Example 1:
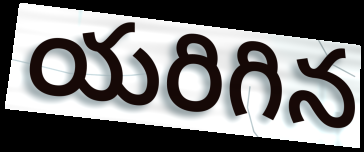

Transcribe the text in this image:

యరిగిన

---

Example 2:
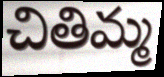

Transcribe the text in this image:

చితిమ్మ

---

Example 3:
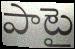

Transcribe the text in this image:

పాటై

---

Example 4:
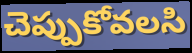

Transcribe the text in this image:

చెప్పుకోవలసి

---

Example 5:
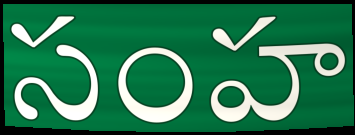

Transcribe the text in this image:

సంహ